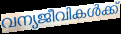
വന്യജീവികൾക്ക്